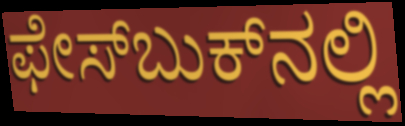
ಫೇಸ್‌ಬುಕ್‌ನಲ್ಲಿ